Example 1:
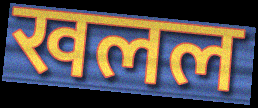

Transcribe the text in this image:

खलल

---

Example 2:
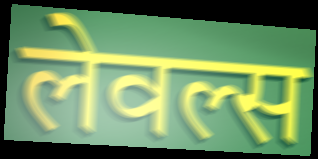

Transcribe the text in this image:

लेवल्स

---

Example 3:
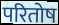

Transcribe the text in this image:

परितोष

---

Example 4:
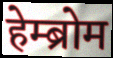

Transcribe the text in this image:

हेम्ब्रोम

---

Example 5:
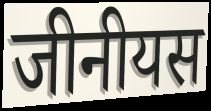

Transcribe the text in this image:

जीनीयस